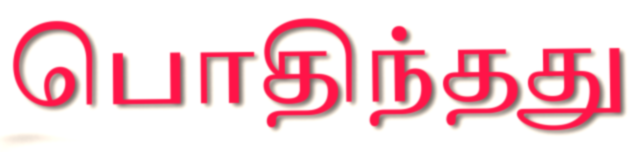
பொதிந்தது